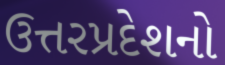
ઉત્તરપ્રદેશનો